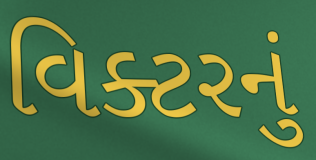
વિક્ટરનું